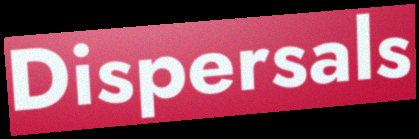
Dispersals